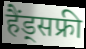
हैंड्सफ्री